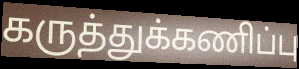
கருத்துக்கணிப்பு